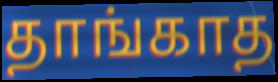
தாங்காத